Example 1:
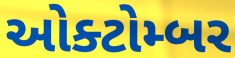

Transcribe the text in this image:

ઓક્ટોમ્બર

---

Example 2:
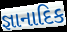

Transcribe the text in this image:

જ્ઞાનાદિક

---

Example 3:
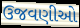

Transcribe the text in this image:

ઉજવણીઓ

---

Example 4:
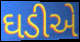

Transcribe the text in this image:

ઘડીએ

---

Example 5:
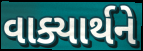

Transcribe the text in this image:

વાક્યાર્થને